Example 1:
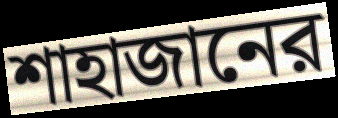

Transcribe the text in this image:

শাহাজানের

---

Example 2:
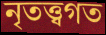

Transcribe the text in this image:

নৃতত্ত্বগত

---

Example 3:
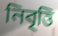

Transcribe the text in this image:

নিবৃত্তি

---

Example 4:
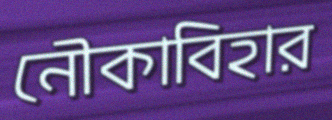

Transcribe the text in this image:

নৌকাবিহার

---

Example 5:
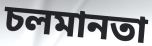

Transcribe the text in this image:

চলমানতা